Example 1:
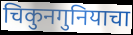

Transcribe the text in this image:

चिकुनगुनियाचा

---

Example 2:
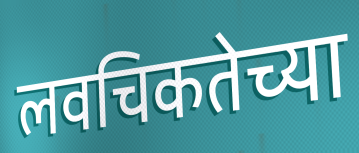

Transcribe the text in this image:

लवचिकतेच्या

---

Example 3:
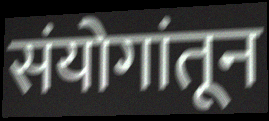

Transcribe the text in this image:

संयोगांतून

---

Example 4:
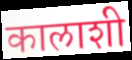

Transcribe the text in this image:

कालाशी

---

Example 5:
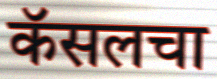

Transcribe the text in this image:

कॅसलचा